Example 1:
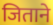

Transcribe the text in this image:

जिताने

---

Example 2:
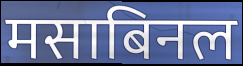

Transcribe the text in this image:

मसाबिनल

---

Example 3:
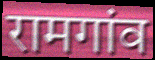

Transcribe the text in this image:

रामगांव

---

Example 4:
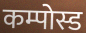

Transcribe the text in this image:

कम्पोस्ड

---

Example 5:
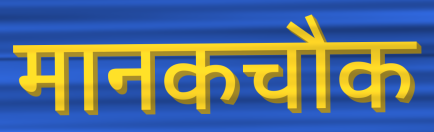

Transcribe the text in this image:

मानकचौक